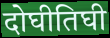
दोघीतिघी